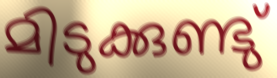
മിടുക്കുണ്ടു്